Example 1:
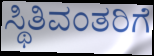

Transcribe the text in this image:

ಸ್ಥಿತಿವಂತರಿಗೆ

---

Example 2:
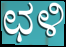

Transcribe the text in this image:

ಛಳಿ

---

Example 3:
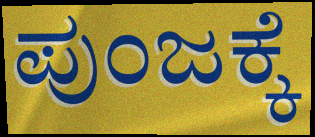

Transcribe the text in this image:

ಪುಂಜಕ್ಕೆ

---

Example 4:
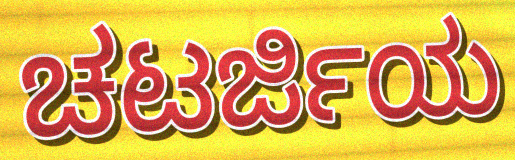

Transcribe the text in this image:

ಚಟರ್ಜಿಯ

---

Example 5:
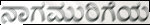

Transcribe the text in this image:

ನಾಗಮುರಿಗೆಯ